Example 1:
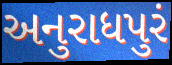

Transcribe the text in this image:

અનુરાધપુરં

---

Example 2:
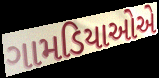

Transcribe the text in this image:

ગામડિયાઓએ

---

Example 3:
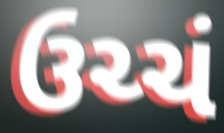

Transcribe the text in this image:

ઉચ્ચં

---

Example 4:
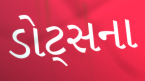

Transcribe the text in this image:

ડોટ્સના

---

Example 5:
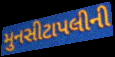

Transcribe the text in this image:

મુનસીટાપલીની